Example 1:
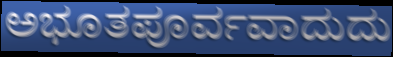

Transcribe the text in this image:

ಅಭೂತಪೂರ್ವವಾದುದು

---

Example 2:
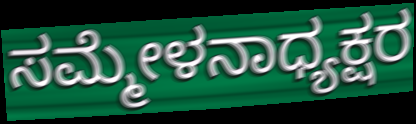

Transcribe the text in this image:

ಸಮ್ಮೇಳನಾಧ್ಯಕ್ಷರ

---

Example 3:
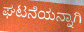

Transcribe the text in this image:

ಘಟನೆಯನ್ನಾಗಿ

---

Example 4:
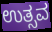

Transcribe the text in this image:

ಉತ್ಸವ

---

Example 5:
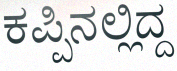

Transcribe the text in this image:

ಕಪ್ಪಿನಲ್ಲಿದ್ದ